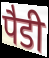
पैडी